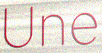
Une